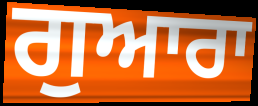
ਗੁਆਰਾ